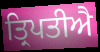
ਤ੍ਰਿਪਤੀਐ